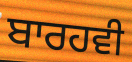
ਬਾਰਹਵੀ